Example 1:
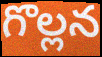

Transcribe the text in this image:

గొల్లన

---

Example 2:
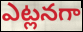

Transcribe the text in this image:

ఎట్లనగా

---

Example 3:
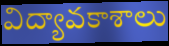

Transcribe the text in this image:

విద్యావకాశాలు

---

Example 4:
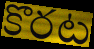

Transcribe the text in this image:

కొరట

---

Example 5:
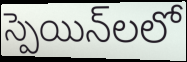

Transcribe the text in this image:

స్పెయిన్‌లలో